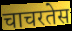
चाचरतेस